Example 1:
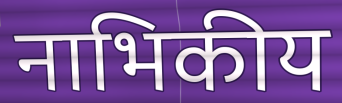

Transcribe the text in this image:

नाभिकीय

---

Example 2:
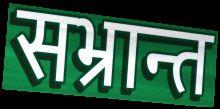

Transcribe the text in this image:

सभ्रान्त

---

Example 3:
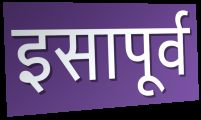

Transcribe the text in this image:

इसापूर्व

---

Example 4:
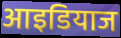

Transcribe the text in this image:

आइडियाज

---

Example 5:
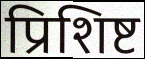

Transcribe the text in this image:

प्रिशिष्ट